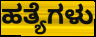
ಹತ್ಯೆಗಳು